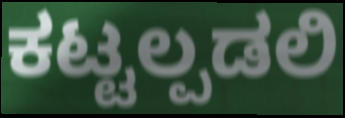
ಕಟ್ಟಲ್ಪಡಲಿ